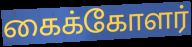
கைக்கோளர்